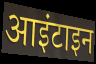
आइंटाइन